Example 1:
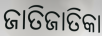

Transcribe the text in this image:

ଜାତିଜାତିକା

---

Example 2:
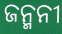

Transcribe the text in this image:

ଜନ୍ମନୀ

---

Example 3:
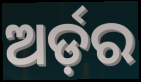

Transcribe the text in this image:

ଅର୍ଡ଼ର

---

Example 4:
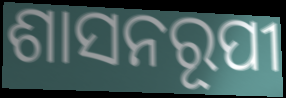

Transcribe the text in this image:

ଶାସନରୂପୀ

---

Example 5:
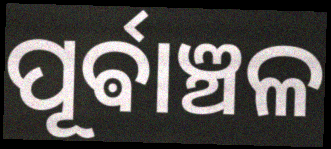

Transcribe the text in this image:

ପୂର୍ଵାଞ୍ଚଳ